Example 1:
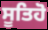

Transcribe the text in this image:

ਸੂਤਿਹੋ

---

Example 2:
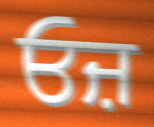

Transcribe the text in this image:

ਓਜ਼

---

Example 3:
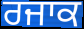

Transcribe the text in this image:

ਰਜਾਕ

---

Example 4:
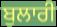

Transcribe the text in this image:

ਬੁਲਾਰੀ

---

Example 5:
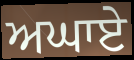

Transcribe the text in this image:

ਅਘਾਏ